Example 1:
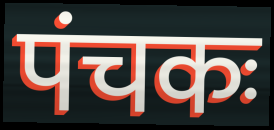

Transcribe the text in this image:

पंचकः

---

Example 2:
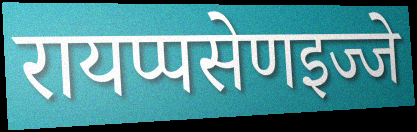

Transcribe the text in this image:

रायप्पसेणइज्जे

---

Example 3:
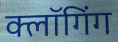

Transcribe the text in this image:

क्लॉगिंग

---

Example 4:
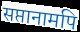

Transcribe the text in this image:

सप्तानामपि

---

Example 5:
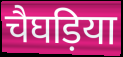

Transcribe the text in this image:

चैघड़िया